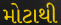
મોટાથી